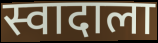
स्वादाला